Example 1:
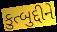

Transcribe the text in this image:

કુત્બુદ્દીને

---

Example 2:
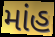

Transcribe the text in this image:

માંહ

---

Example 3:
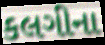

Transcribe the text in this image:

કલગીના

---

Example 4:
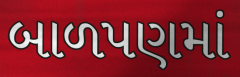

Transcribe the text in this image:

બાળપણમાં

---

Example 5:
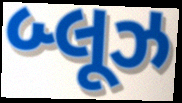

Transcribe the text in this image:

બ્લૂઝ